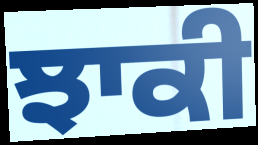
ਝਾਕੀ